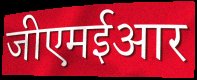
जीएमईआर